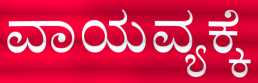
ವಾಯವ್ಯಕ್ಕೆ